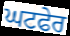
ਘਟਫੇਰ